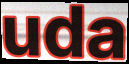
uda